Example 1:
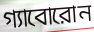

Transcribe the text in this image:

গ্যাবোরোন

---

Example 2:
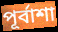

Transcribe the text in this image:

পূর্বাশা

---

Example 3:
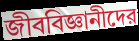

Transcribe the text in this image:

জীববিজ্ঞানীদের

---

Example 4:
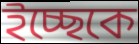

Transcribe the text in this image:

ইচ্ছেকে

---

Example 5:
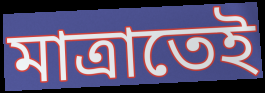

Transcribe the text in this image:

মাত্রাতেই